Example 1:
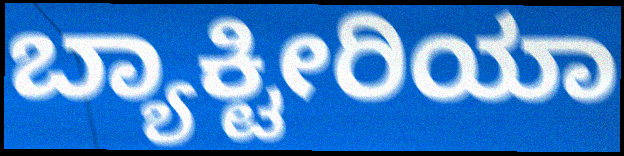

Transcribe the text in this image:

ಬ್ಯಾಕ್ಟೀರಿಯಾ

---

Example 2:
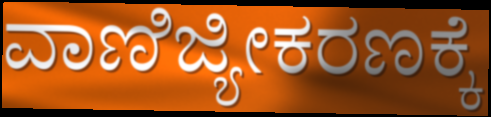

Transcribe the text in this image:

ವಾಣಿಜ್ಯೀಕರಣಕ್ಕೆ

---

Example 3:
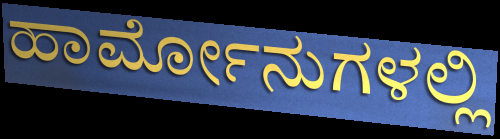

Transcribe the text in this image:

ಹಾರ್ಮೋನುಗಳಲ್ಲಿ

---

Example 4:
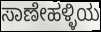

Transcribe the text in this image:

ಸಾಣೇಹಳ್ಳಿಯ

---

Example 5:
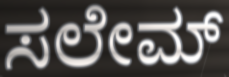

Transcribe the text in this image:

ಸಲೇಮ್